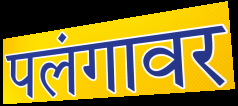
पलंगावर